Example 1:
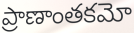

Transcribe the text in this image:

ప్రాణాంతకమో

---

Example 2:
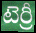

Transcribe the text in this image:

టెర్రీ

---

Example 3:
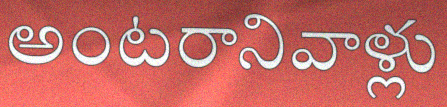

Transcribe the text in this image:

అంటరానివాళ్లు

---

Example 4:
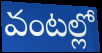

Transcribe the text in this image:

వంటల్లో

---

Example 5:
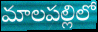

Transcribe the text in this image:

మాలపల్లిలో